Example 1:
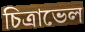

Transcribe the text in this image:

চিত্রাভেল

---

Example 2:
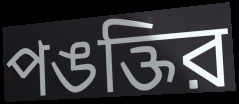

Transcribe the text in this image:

পঙক্তির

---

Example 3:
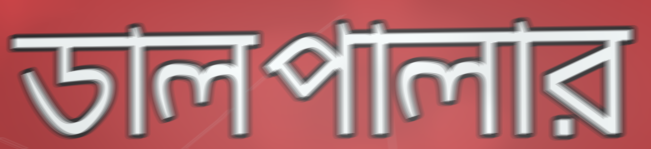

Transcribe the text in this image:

ডালপালার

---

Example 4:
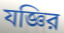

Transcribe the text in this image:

যজ্ঞির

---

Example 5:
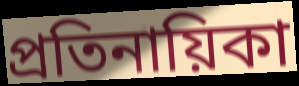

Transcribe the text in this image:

প্রতিনায়িকা